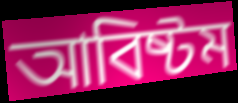
আবিষ্টম